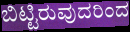
ಬಿಟ್ಟಿರುವುದರಿಂದ